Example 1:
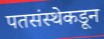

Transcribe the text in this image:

पतसंस्थेकडून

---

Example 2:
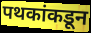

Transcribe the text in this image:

पथकांकडून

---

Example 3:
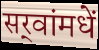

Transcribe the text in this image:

सर्वांमधें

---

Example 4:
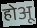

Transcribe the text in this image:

होअू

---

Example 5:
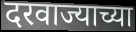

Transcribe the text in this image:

दरवाज्याच्या